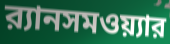
র‍্যানসমওয়্যার